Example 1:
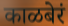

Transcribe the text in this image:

काळबेरं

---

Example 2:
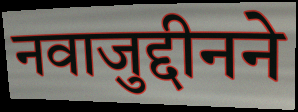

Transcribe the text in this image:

नवाजुद्दीनने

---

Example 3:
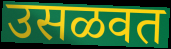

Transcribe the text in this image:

उसळवत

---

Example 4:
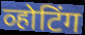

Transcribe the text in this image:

व्होटिंग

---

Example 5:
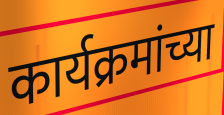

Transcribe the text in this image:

कार्यक्रमांच्या